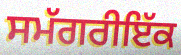
ਸਮੱਗਰੀਇੱਕ